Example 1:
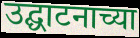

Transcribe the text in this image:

उद्घाटनाच्या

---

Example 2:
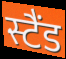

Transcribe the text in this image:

स्टैंड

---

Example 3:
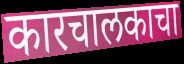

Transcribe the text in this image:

कारचालकाचा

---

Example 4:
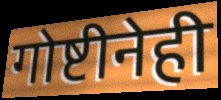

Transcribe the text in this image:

गोष्टीनेही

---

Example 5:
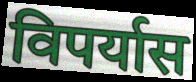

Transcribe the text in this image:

विपर्यास